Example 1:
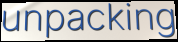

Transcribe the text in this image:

unpacking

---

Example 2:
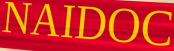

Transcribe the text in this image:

NAIDOC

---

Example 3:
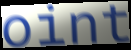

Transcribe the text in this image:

oint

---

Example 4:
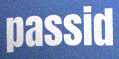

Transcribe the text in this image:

passid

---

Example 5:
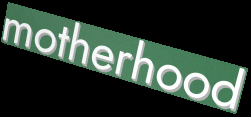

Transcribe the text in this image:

motherhood